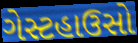
ગેસ્ટહાઉસો